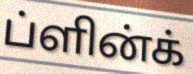
ப்ளின்க்